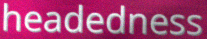
headedness